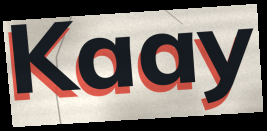
Kaay